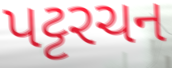
પટ્ટરચન